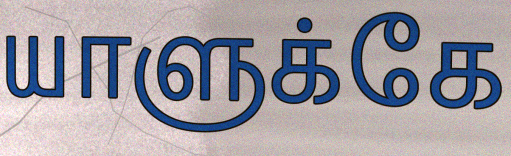
யாளுக்கே